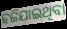
ହଜିଯାଇଥିବା